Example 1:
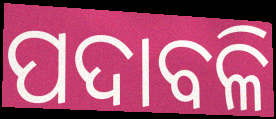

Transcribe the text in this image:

ପଦାବଳି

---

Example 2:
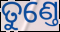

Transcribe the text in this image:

ତୁଣ୍ତେ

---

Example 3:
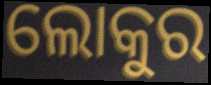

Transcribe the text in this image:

ଲୋକୁର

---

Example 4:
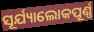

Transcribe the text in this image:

ସୂର୍ଯ୍ୟାଲୋକପୂର୍ଣ୍ଣ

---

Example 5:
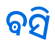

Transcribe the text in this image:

ଵସି